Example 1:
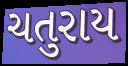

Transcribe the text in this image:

ચતુરાય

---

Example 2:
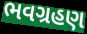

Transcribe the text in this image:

ભવગ્રહણ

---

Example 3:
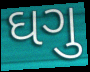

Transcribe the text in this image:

ઘગુ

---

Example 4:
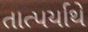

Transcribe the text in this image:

તાત્પર્યાથે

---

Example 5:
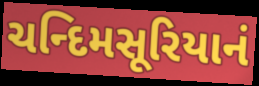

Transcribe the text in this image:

ચન્દિમસૂરિયાનં